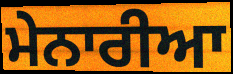
ਮੇਨਾਰੀਆ